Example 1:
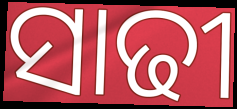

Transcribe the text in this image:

ସାଢୀ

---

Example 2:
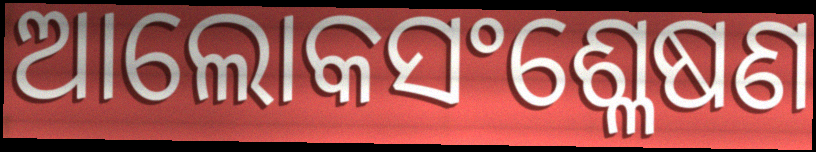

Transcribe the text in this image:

ଆଲୋକସଂଶ୍ଳେଷଣ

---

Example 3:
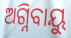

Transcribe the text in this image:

ଅଗ୍ନିବାୟୁ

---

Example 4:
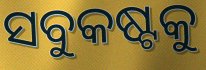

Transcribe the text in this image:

ସବୁକଷ୍ଟକୁ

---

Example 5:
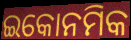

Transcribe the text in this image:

ଇକୋନମିକ